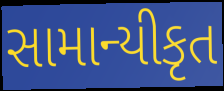
સામાન્યીકૃત